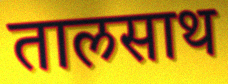
तालसाथ